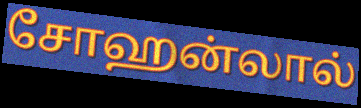
சோஹன்லால்